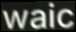
waic